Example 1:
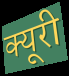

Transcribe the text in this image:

क्यूरी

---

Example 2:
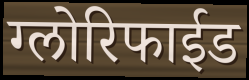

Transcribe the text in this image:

ग्लोरिफाईड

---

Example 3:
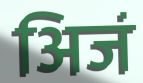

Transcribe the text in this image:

अिजं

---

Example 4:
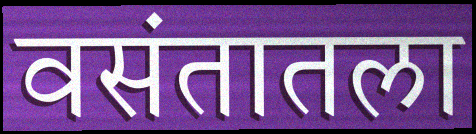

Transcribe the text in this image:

वसंतातला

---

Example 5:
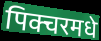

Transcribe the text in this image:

पिक्चरमधे